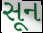
સૂન